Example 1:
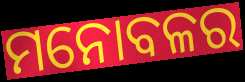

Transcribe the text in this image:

ମନୋବଳର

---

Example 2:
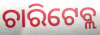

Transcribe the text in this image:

ଚାରିଟେବ୍ଲ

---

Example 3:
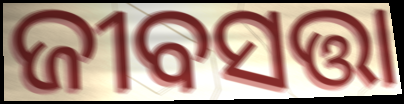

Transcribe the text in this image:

ଜୀବସତ୍ତା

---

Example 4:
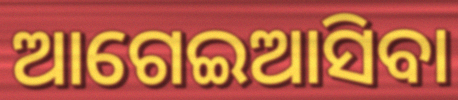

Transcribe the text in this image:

ଆଗେଇଆସିବା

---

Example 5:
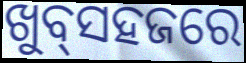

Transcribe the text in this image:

ଖୁବ୍‌ସହଜରେ